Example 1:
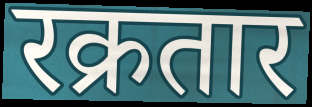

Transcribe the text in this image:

रक्रतार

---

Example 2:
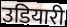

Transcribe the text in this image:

उडियारी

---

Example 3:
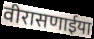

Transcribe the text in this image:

वीरासणाईया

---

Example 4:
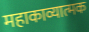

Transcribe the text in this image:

महाकाव्यात्मक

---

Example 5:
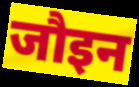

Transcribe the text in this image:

जौइन